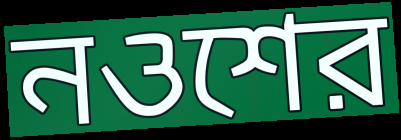
নওশের